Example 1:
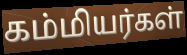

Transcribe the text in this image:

கம்மியர்கள்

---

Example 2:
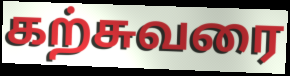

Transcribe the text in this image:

கற்சுவரை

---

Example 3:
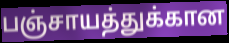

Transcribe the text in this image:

பஞ்சாயத்துக்கான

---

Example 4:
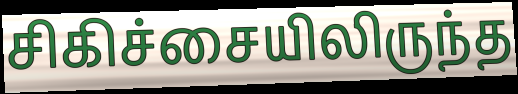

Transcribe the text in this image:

சிகிச்சையிலிருந்த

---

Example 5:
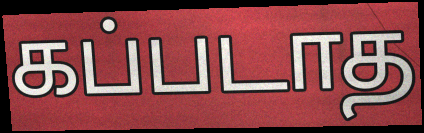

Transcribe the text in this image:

கப்படாத